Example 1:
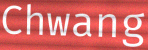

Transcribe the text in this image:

Chwang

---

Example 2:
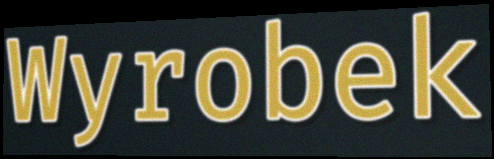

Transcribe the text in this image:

Wyrobek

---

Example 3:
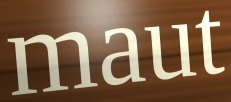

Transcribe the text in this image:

maut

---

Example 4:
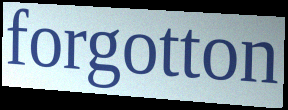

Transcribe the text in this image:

forgotton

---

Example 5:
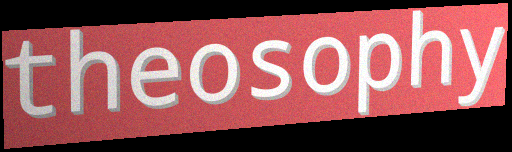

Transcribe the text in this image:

theosophy